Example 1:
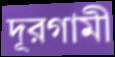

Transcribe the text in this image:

দূরগামী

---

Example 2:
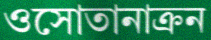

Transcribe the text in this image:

ওসোতানাক্রন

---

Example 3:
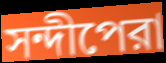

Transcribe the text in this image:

সন্দীপেরা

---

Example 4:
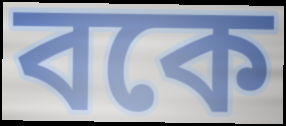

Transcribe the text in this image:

বকে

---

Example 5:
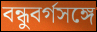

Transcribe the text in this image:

বন্ধুবর্গসঙ্গে